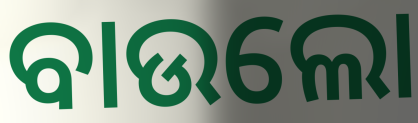
ବାଉଲୋ